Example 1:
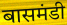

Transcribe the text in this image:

बासमंडी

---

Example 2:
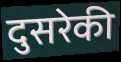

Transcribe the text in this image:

दुसरेकी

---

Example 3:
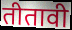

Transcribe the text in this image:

तीतावी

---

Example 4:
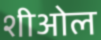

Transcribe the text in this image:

शीओल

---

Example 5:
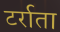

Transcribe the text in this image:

टर्राता